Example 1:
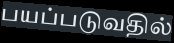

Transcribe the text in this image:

பயப்படுவதில்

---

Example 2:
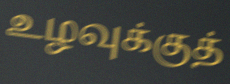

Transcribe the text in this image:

உழவுக்குத்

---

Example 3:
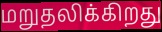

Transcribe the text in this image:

மறுதலிக்கிறது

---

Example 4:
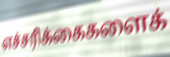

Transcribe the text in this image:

எச்சரிக்கைகளைக்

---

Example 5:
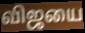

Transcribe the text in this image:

விஜயை